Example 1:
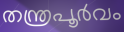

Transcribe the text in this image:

തന്ത്രപൂർവം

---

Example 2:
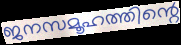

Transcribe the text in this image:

ജനസമൂഹത്തിന്റെ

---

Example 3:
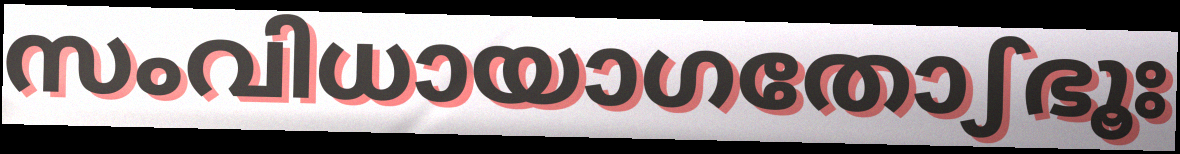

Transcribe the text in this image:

സംവിധായാഗതോഽഭൂഃ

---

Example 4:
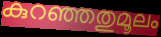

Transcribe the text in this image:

കുറഞ്ഞതുമൂലം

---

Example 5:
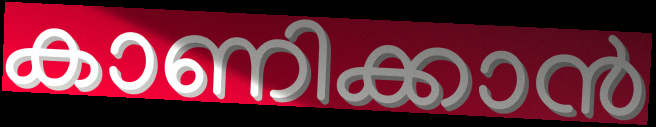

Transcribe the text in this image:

കാണിക്കാൻ